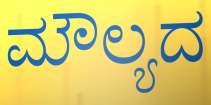
ಮೌಲ್ಯದ